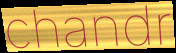
chandr